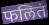
फलितं